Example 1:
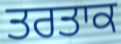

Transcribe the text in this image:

ਤਰਤਾਕ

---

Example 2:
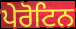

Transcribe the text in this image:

ਪੇਰੋਟਿਨ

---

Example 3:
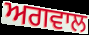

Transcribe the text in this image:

ਅਗਵਾਲ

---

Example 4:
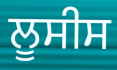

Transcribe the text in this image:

ਲੂਸੀਸ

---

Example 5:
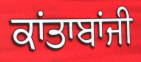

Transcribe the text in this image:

ਕਾਂਤਾਬਾਂਜੀ